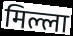
मिल्ला